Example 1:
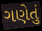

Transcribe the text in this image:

ગણેતું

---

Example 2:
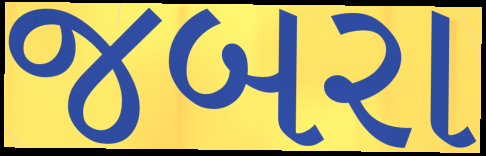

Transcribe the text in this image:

જબરા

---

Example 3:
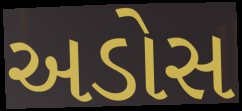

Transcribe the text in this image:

અડોસ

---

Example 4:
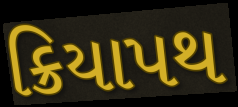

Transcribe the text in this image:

ક્રિયાપથ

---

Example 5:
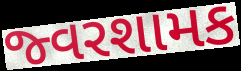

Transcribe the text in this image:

જ્વરશામક